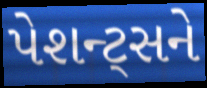
પેશન્ટ્સને